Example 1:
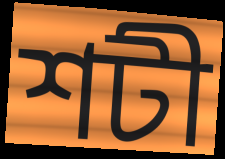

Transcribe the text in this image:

শটী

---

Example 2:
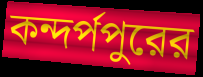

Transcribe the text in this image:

কন্দর্পপুরের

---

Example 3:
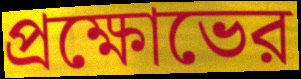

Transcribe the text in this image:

প্রক্ষোভের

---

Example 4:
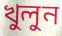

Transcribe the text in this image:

খুলুন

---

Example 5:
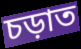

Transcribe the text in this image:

চড়াত